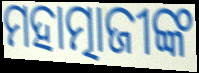
ମହାତ୍ମାଜୀଙ୍କ